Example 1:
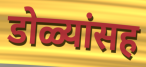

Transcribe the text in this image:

डोळ्यांसह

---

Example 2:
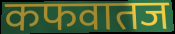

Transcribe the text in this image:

कफवातज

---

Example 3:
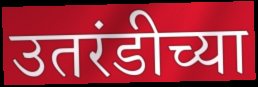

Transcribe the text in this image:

उतरंडीच्या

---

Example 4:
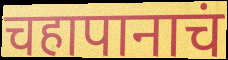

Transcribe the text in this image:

चहापानाचं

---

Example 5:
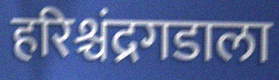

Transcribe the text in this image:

हरिश्चंद्रगडाला